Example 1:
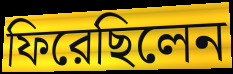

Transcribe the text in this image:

ফিরেছিলেন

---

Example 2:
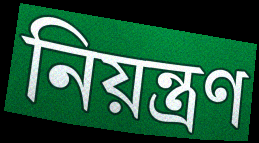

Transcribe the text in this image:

নিয়ন্ত্রণ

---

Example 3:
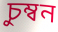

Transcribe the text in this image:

চুম্বন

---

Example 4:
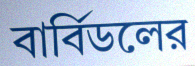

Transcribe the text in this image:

বার্বিডলের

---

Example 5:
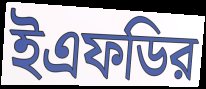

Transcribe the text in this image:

ইএফডির